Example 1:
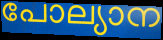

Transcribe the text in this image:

പോല്യാന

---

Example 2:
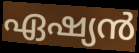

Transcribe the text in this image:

ഏഷ്യൻ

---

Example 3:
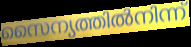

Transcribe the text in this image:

സൈന്യത്തിൽനിന്ന്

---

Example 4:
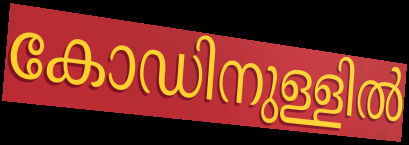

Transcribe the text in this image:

കോഡിനുള്ളിൽ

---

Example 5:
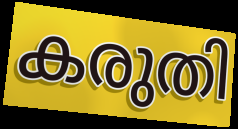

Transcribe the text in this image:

കരുതി